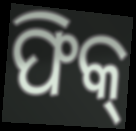
ଫିକ୍